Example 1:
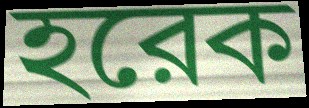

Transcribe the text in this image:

হরেক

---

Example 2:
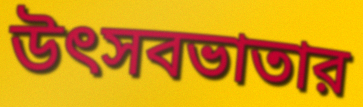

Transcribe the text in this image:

উৎসবভাতার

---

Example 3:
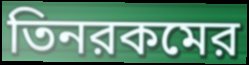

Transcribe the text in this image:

তিনরকমের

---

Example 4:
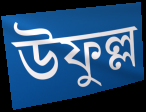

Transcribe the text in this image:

উফুল্ল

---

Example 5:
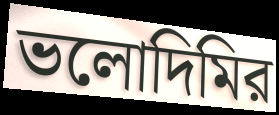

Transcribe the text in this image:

ভলোদিমির